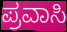
ಪ್ರವಾಸಿ